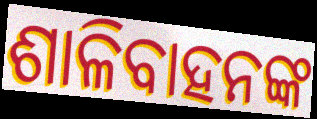
ଶାଳିବାହନଙ୍କ